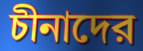
চীনাদের